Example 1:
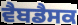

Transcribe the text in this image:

ਵੈਬਡੈਸਕ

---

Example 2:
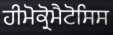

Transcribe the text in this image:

ਹੀਮੋਕ੍ਰੋਮੈਟੋਸਿਸ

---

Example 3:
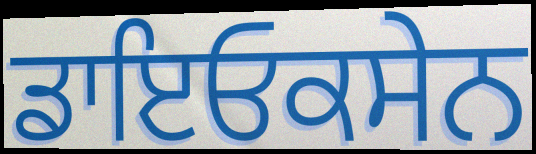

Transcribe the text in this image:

ਡਾਇਓਕਸੇਨ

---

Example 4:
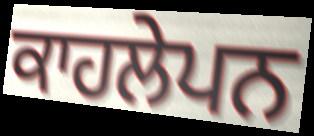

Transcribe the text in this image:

ਕਾਹਲੇਪਨ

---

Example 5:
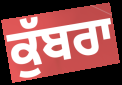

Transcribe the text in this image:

ਕੁੱਬਰਾ